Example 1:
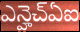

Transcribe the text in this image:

ఎన్హెచ్ఏఐ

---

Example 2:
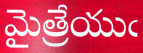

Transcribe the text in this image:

మైత్రేయుఁ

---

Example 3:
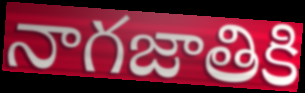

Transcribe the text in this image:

నాగజాతికి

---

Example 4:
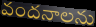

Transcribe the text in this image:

వందనాలను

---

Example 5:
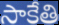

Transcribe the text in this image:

సాకేతి